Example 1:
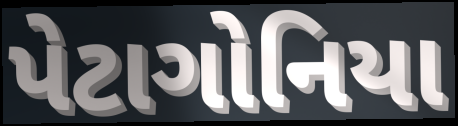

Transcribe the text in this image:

પેટાગોનિયા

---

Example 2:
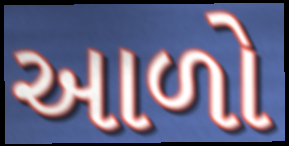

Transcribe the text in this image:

આળો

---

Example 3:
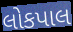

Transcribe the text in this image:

લોકપાલ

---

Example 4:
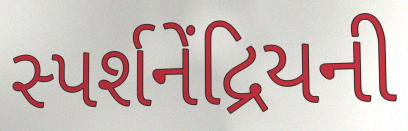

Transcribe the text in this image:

સ્પર્શનેંદ્રિયની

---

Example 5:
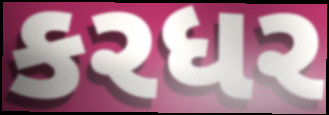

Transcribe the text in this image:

કરધર